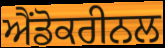
ਐਂਡੋਕਰੀਨਲ